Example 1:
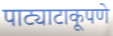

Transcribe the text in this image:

पाट्याटाकूपणे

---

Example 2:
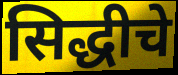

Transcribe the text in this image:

सिद्धीचे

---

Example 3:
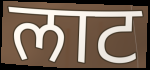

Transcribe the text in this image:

लाट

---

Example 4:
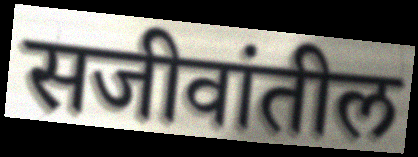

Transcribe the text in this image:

सजीवांतील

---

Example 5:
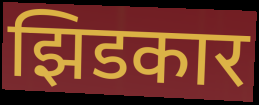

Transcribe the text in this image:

झिडकार